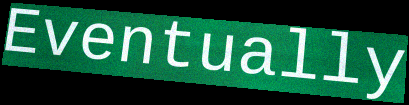
Eventually